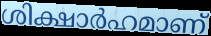
ശിക്ഷാർഹമാണ്